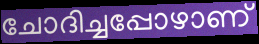
ചോദിച്ചപ്പോഴാണ്